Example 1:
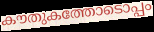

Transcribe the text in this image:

കൗതുകത്തോടൊപ്പം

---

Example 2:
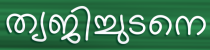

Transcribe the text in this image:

ത്യജിച്ചുടനെ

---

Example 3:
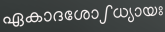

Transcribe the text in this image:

ഏകാദശോഽധ്യായഃ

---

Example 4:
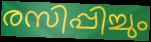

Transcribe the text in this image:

രസിപ്പിച്ചും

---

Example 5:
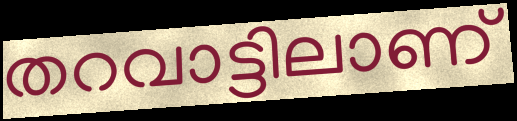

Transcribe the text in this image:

തറവാട്ടിലാണ്